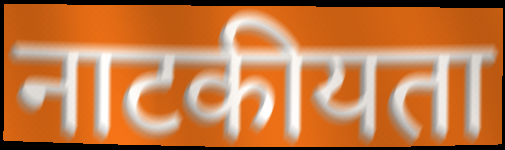
नाटकीयता